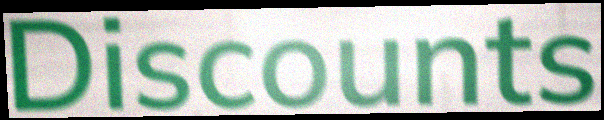
Discounts